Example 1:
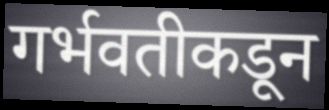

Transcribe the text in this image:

गर्भवतीकडून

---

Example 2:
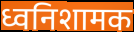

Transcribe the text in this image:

ध्वनिशामक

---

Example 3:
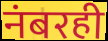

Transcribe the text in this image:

नंबरही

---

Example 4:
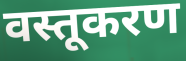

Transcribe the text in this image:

वस्तूकरण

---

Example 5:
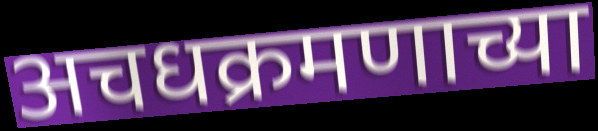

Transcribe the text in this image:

अचधक्रमणाच्या